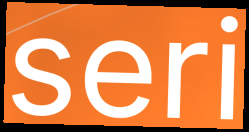
seri